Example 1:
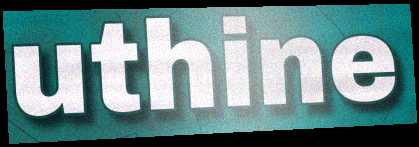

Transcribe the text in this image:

uthine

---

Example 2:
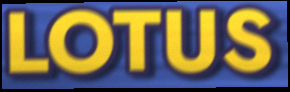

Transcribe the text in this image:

LOTUS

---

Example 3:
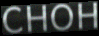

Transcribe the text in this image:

CHOH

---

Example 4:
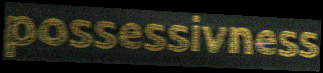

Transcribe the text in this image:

possessivness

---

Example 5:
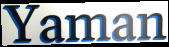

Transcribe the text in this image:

Yaman